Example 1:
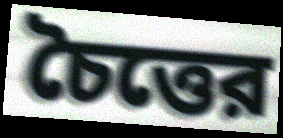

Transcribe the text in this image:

চৈত্তের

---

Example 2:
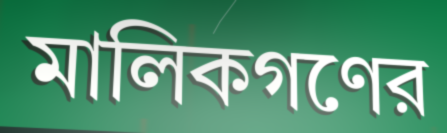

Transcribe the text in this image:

মালিকগণের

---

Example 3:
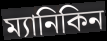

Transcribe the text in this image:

ম্যানিকিন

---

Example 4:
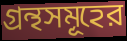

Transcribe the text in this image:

গ্রন্থসমূহের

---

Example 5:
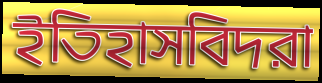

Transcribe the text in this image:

ইতিহাসবিদরা